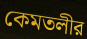
কেমতলীর